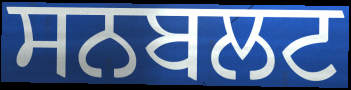
ਸਨਬਲਟ